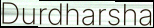
Durdharsha